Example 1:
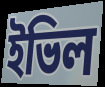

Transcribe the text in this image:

ইভিল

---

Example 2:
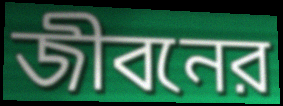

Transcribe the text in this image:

জীবনের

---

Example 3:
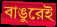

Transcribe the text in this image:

বাঙুরেই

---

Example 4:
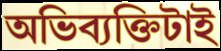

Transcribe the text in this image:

অভিব্যক্তিটাই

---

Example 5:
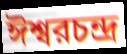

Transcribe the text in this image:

ঈশ্বরচন্দ্র